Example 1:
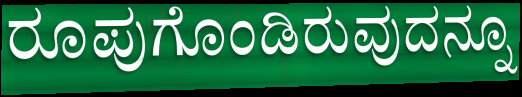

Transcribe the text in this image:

ರೂಪುಗೊಂಡಿರುವುದನ್ನೂ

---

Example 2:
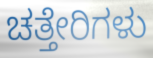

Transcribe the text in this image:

ಚತ್ತೇರಿಗಳು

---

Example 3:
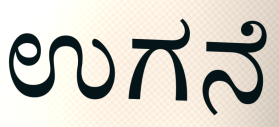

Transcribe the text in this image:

ಉಗನೆ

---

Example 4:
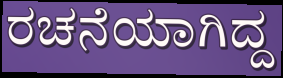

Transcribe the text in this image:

ರಚನೆಯಾಗಿದ್ದ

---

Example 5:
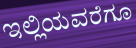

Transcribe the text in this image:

ಇಲ್ಲಿಯವರೆಗೂ